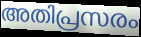
അതിപ്രസരം